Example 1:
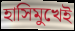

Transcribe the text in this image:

হাসিমুখেই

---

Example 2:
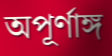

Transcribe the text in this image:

অপূর্ণাঙ্গ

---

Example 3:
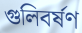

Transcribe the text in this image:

গুলিবর্ষণ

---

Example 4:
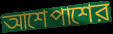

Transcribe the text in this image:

আশেপাশের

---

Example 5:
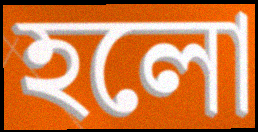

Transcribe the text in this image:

হলো